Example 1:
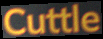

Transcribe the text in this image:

Cuttle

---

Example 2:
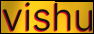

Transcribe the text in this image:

vishu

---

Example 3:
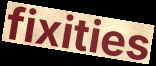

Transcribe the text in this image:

fixities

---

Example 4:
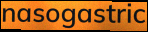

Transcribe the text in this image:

nasogastric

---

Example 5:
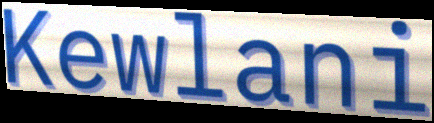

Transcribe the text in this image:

Kewlani